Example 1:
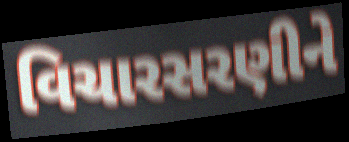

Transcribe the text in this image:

વિચારસરણીને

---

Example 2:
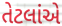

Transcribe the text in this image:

તેટલાંએ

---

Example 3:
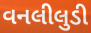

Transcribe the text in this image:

વનલીલુડી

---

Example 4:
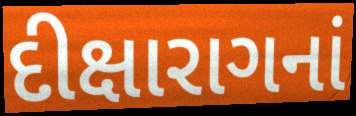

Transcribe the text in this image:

દીક્ષારાગનાં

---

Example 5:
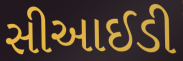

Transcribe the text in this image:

સીઆઈડી